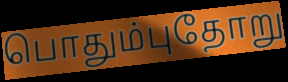
பொதும்புதோறு